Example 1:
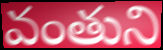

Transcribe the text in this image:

వంతుని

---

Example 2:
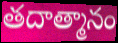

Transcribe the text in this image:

తదాత్మానం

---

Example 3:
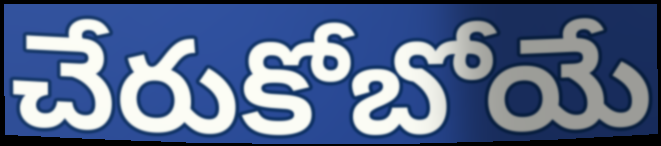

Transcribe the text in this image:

చేరుకోబోయే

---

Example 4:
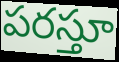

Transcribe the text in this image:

పరస్తూ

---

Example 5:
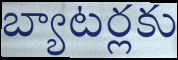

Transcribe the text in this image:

బ్యాటర్లకు